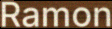
Ramon